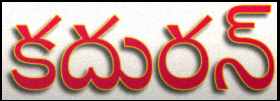
కదురన్